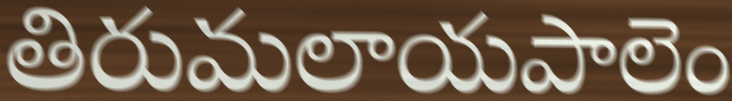
తిరుమలాయపాలెం